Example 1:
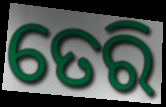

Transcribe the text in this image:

ତେରି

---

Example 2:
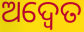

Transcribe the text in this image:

ଅଦ୍ଵେତ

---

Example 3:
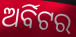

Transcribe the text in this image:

ଅର୍ବିଟର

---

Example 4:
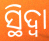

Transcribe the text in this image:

ସ୍ଥିଦ୍ଵା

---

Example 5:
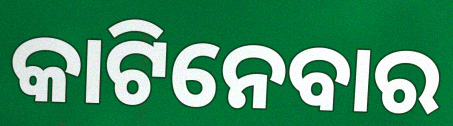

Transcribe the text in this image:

କାଟିନେବାର